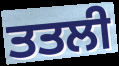
ਤਤਲੀ